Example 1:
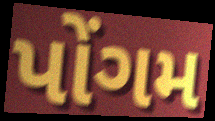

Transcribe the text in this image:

પોંગમ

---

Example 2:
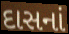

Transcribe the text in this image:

દાસનાં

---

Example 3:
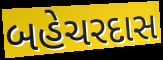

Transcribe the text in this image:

બહેચરદાસ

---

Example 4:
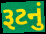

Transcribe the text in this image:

રૂટનું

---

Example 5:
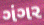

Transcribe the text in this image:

ગંગર